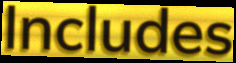
Includes